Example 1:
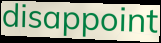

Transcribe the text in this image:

disappoint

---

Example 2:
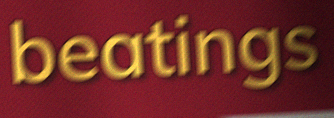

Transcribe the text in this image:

beatings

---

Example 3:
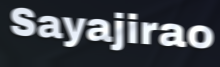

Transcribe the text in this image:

Sayajirao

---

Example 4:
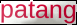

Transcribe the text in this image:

patang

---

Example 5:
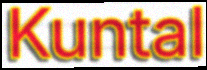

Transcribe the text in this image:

Kuntal